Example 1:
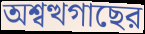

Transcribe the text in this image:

অশ্বত্থগাছের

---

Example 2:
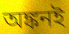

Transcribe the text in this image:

অঙ্কনই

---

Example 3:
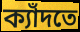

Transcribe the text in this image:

ক্যাঁদতে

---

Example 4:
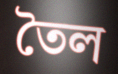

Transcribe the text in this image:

তৈল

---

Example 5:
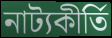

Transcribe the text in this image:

নাট্যকীর্তি